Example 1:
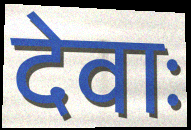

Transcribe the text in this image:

देवाः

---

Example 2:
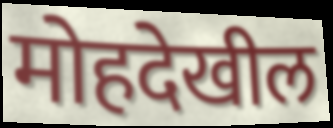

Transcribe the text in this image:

मोहदेखील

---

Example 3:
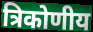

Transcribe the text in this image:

त्रिकोणीय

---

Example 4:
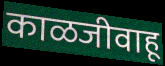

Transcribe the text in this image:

काळजीवाहू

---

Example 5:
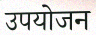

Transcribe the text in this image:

उपयोजन